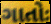
ગાતોઃ